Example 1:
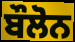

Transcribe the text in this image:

ਬੌਲੋਨ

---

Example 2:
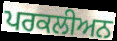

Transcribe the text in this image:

ਪਰਕਲੀਅਨ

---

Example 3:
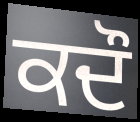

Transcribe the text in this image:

ਕਦੌ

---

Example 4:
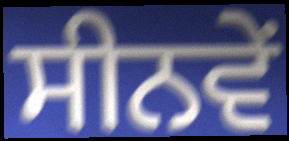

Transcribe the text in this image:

ਸੀਨਵੇਂ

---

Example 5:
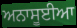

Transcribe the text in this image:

ਅਨਾਸੂਈਆ